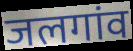
जलगांव